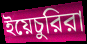
ইয়েচুরিরা